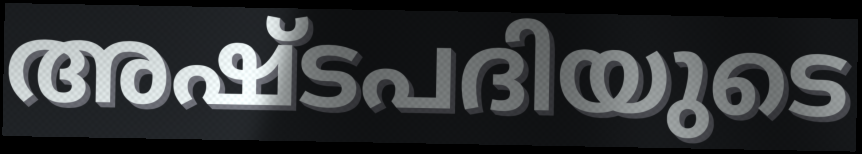
അഷ്ടപദിയുടെ